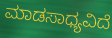
ಮಾಡಸಾಧ್ಯವಿದೆ